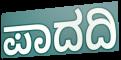
ಪಾದದಿ